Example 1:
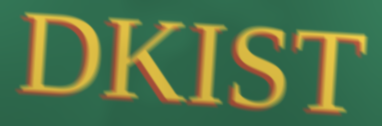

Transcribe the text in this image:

DKIST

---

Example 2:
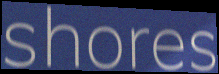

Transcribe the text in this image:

shores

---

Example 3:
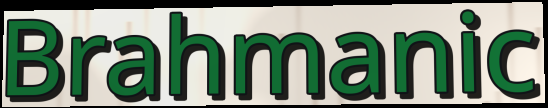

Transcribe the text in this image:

Brahmanic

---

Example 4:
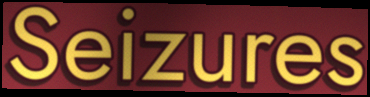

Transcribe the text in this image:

Seizures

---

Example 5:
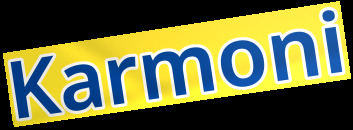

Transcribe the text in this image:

Karmoni